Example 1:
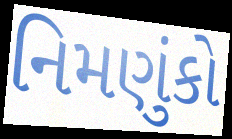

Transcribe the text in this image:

નિમણુંકો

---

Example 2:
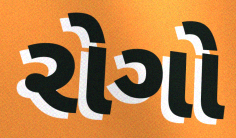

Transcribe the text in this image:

રોગો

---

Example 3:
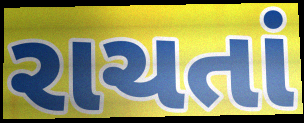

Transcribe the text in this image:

રાચતાં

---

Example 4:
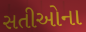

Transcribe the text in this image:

સતીઓના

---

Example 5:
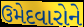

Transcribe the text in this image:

ઉમેદવારોને